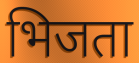
भिजता